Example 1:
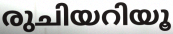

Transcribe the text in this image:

രുചിയറിയൂ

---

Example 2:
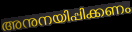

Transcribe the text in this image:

അനുനയിപ്പിക്കണം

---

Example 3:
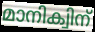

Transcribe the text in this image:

മാനിക്വിന്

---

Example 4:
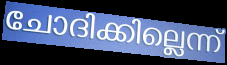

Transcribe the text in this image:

ചോദിക്കില്ലെന്ന്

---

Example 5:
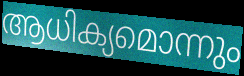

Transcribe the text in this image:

ആധിക്യമൊന്നും